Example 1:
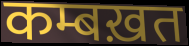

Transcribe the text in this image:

कम्बख़त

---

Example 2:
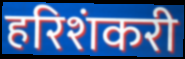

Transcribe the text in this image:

हरिशंकरी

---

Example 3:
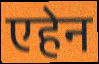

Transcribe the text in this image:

एहेन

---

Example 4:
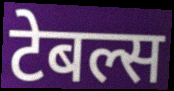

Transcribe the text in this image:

टेबल्स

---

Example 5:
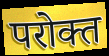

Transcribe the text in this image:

परोक्त